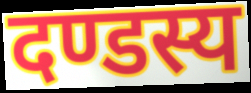
दण्डस्य